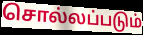
சொல்லப்படும்